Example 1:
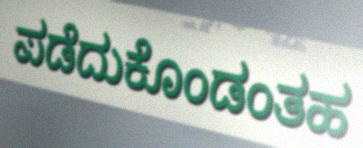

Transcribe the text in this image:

ಪಡೆದುಕೊಂಡಂತಹ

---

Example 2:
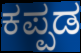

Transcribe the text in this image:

ಕಪ್ಪಡ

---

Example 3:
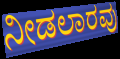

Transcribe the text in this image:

ನೀಡಲಾರವು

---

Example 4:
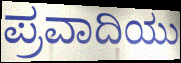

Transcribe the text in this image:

ಪ್ರವಾದಿಯು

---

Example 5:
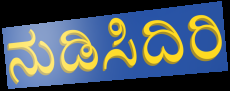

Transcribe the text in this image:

ನುಡಿಸಿದಿರಿ